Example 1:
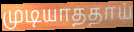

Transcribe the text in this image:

முடியாததாய்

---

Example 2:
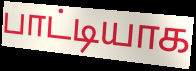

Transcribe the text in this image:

பாட்டியாக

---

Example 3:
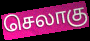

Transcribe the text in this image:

செலாகு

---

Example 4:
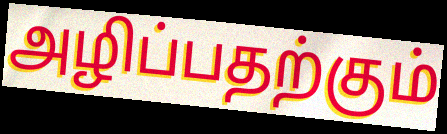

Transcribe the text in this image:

அழிப்பதற்கும்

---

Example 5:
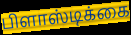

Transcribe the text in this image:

பிளாஸ்டிக்கை